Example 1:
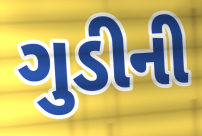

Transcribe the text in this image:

ગુડીની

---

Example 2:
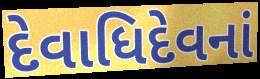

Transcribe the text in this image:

દેવાધિદેવનાં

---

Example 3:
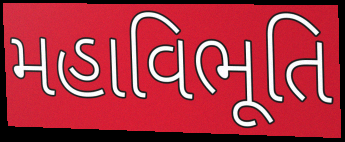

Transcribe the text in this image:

મહાવિભૂતિ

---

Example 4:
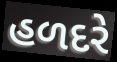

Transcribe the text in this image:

હળદરે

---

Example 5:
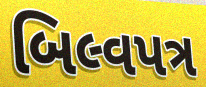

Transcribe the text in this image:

બિલ્વપત્ર